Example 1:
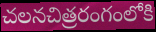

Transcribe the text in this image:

చలనచిత్రరంగంలోకి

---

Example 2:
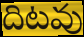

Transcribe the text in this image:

దిటవు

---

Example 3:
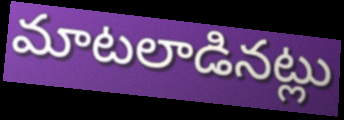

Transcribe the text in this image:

మాటలాడినట్లు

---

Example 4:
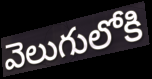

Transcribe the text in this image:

వెలుగులోకి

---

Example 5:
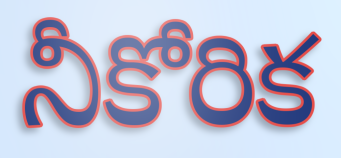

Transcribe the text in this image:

నీకోరిక